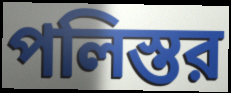
পলিস্তর